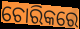
ଚୋରିକରେ